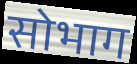
सोभाग